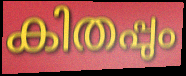
കിതപ്പും